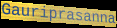
Gauriprasanna